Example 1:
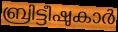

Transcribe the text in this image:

ബ്രിട്ടീഷുകാർ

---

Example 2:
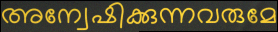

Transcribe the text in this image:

അന്വേഷിക്കുന്നവരുമേ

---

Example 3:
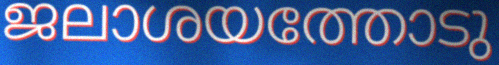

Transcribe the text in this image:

ജലാശയത്തോടു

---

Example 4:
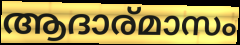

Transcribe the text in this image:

ആദാര്മാസം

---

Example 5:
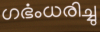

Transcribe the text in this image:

ഗൎഭംധരിച്ചു